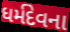
ધર્મદેવના